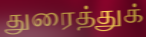
துரைத்துக்